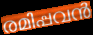
രമിപ്പവൻ